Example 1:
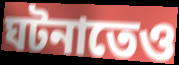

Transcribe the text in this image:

ঘটনাতেও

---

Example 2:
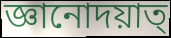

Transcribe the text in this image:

জ্ঞানোদয়াত্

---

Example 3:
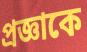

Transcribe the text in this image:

প্রজ্ঞাকে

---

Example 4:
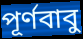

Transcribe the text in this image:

পূর্ণবাবু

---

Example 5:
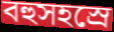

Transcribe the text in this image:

বহুসহস্রে